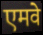
एमवे